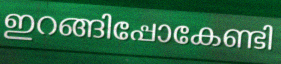
ഇറങ്ങിപ്പോകേണ്ടി